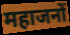
महाजनों